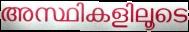
അസ്ഥികളിലൂടെ